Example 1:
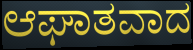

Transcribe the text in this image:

ಆಘಾತವಾದ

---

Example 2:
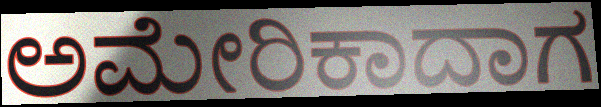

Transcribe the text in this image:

ಅಮೇರಿಕಾದಾಗ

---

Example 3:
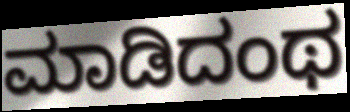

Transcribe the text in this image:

ಮಾಡಿದಂಥ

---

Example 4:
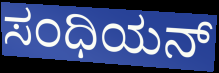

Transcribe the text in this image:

ಸಂಧಿಯನ್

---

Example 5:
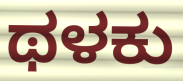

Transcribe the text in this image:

ಥಳಕು